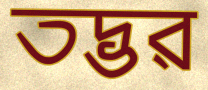
তদ্ভৱ